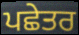
ਪਛੇਤਰ